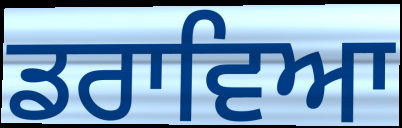
ਡਰਾਵਿਆ